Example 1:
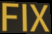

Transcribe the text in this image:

FIX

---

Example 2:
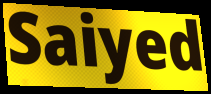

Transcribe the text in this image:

Saiyed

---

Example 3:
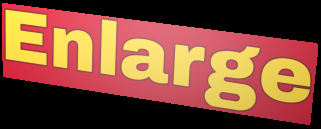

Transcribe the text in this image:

Enlarge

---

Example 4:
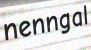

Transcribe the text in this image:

nenngal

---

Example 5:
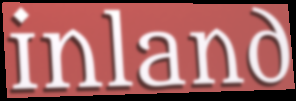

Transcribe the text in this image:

inland